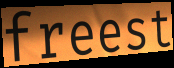
freest